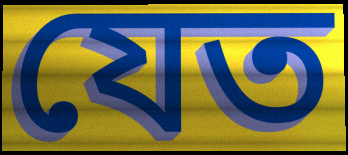
যেত